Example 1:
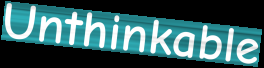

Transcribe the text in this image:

Unthinkable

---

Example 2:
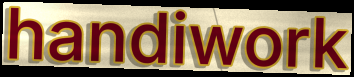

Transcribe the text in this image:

handiwork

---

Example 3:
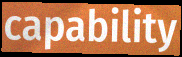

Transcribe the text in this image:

capability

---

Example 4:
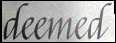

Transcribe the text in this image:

deemed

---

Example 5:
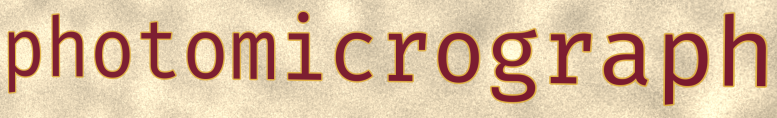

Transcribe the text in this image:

photomicrograph